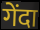
गेंदा